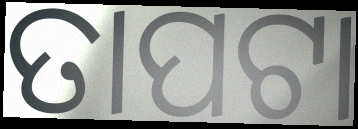
ତାପଟା